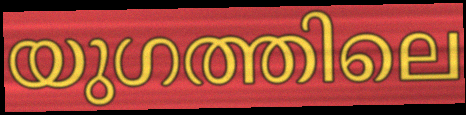
യുഗത്തിലെ